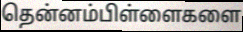
தென்னம்பிள்ளைகளை